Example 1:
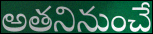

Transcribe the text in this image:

అతనినుంచే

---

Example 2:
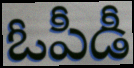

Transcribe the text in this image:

ఓపీడీ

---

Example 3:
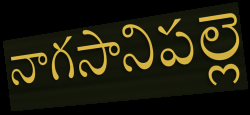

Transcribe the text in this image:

నాగసానిపల్లె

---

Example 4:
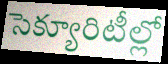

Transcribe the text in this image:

సెక్యూరిటీల్లో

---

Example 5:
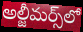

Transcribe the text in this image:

అల్జీమర్స్‌లో